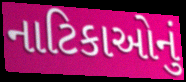
નાટિકાઓનું